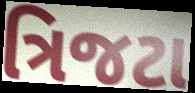
ત્રિજટા